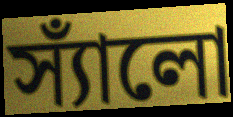
স্যাঁলো